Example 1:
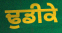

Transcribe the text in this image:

ਢੁਡੀਕੇ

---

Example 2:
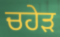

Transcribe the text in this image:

ਚਹੇੜ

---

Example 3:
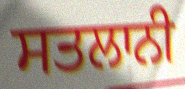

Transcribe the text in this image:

ਸਤਲਾਨੀ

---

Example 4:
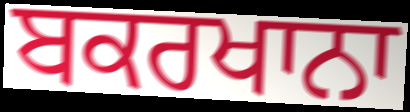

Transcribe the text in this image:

ਬਕਰਖਾਨਾ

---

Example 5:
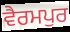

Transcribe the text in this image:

ਵੈਰਮਪੁਰ